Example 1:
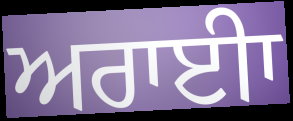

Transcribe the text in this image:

ਅਰਾਈਾ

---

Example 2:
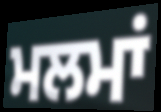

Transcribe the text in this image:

ਮਲਮਾਂ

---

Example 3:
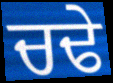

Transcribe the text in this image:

ਚਢੇ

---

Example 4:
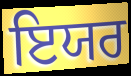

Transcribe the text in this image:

ਇਯਰ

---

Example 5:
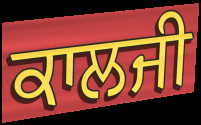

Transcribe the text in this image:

ਕਾਲਜੀ